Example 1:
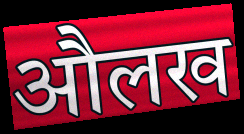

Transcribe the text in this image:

औलख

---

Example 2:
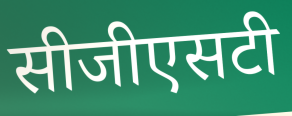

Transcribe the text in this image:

सीजीएसटी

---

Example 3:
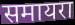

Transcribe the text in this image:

समायरा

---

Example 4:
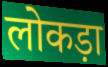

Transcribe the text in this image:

लोकड़ा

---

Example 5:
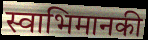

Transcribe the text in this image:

स्वाभिमानकी